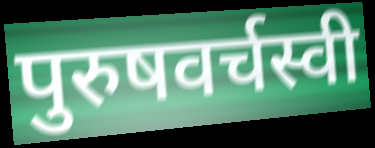
पुरुषवर्चस्वी